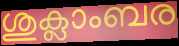
ശുക്ലാംബര